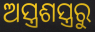
ଅସ୍ତ୍ରଶସ୍ତ୍ରରୁ